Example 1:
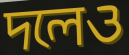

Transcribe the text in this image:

দলেও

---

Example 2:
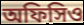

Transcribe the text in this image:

অফিসিও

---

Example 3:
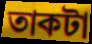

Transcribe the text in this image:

তাকটা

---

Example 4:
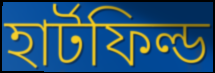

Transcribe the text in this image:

হার্টফিল্ড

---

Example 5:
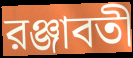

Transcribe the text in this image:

রঞ্জাবতী